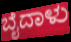
ಬೈದಾಳು